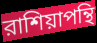
রাশিয়াপন্থি